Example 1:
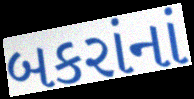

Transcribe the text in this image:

બકરાંનાં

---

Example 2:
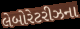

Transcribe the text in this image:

લેબોરેટરીઝના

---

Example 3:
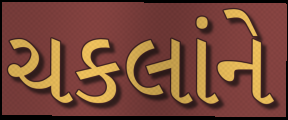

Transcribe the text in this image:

ચકલાંને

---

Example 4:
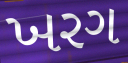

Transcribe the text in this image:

ખરગ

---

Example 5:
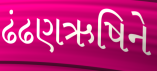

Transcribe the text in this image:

ઢંઢણઋષિને